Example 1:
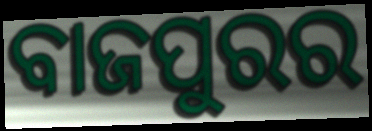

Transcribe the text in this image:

ବାଜପୁରର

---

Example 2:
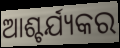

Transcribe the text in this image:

ଆଶ୍ଚର୍ଯ୍ୟକର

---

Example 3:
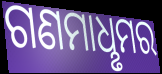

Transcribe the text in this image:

ଗଣମାଧୢମର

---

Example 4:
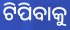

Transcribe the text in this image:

ଟିପିବାକୁ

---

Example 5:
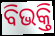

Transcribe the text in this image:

ବିଭକ୍ତି